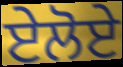
ਏਲੋਏ